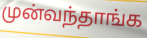
முன்வந்தாங்க